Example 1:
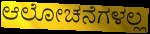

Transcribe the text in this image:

ಆಲೋಚನೆಗಳಲ್ಲ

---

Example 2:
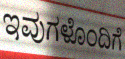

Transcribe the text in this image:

ಇವುಗಳೊಂದಿಗೆ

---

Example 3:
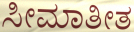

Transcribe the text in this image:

ಸೀಮಾತೀತ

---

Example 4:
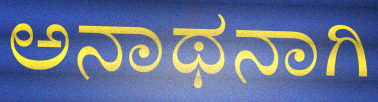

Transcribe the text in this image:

ಅನಾಥನಾಗಿ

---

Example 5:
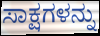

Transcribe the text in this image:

ಸಾಕ್ಷಗಳನ್ನು